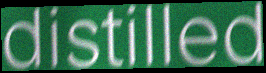
distilled